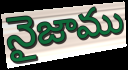
నైజాము